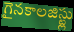
గైనకాలజిస్ట్లు